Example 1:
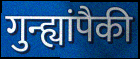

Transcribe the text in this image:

गुन्ह्यांपैकी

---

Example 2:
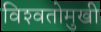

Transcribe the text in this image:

विश्वतोमुखी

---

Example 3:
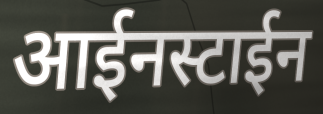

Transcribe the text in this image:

आईनस्टाईन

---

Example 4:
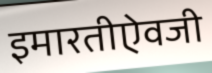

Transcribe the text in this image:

इमारतीऐवजी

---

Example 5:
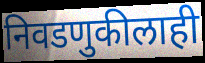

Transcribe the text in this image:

निवडणुकीलाही